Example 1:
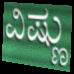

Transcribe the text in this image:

ವಿಷ್ಣು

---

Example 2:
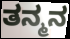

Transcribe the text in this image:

ತನ್ಮನ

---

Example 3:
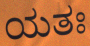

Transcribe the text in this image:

ಯತಃ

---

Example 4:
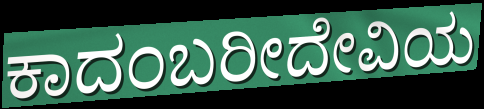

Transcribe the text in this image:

ಕಾದಂಬರೀದೇವಿಯ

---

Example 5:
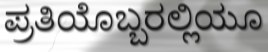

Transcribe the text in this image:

ಪ್ರತಿಯೊಬ್ಬರಲ್ಲಿಯೂ